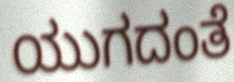
ಯುಗದಂತೆ